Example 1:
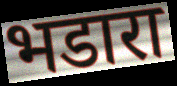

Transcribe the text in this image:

भडारा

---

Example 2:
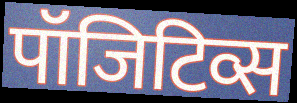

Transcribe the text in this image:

पॉजिटिव्स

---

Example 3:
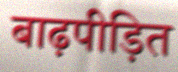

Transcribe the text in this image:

बाढ़पीड़ित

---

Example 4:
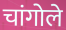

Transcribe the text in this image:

चांगोले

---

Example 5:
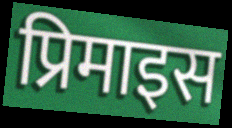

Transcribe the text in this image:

प्रिमाइस